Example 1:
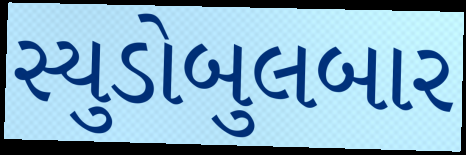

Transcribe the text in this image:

સ્યુડોબુલબાર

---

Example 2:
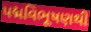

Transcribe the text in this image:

પદ્મવિભૂષણથી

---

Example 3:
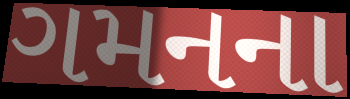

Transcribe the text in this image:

ગમનના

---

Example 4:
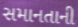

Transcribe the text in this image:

સમાનતાની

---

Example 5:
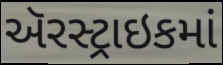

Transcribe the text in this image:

ઍરસ્ટ્રાઇકમાં